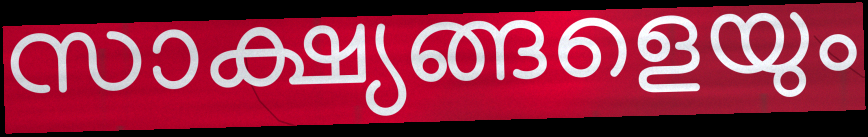
സാക്ഷ്യങ്ങളെയും